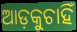
ଆଡ଼କୁଚାହିଁ